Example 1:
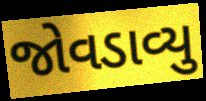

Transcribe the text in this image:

જોવડાવ્યુ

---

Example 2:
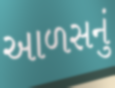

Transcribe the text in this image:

આળસનું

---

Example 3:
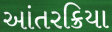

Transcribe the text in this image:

આંતરક્રિયા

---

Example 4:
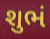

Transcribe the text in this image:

શુભં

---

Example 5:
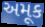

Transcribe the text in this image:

અમૂક